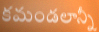
కమండలాన్నీ